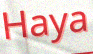
Haya